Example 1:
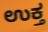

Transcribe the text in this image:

ಉಕ್ತ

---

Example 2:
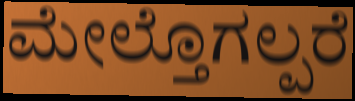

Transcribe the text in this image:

ಮೇಲ್ತೊಗಲ್ಪರೆ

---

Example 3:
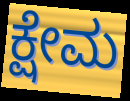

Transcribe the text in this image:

ಕ್ಷೇಮ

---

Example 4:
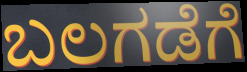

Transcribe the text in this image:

ಬಲಗಡೆಗೆ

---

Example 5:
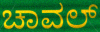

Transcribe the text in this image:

ಚಾವಲ್